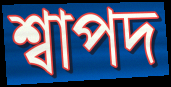
শ্বাপদ